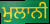
ਮੁਲਾਨੀ